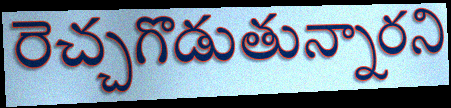
రెచ్చగొడుతున్నారని